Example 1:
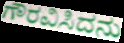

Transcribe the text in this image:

ಗೌರವಿಸಿದನು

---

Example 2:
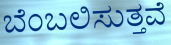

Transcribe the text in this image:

ಬೆಂಬಲಿಸುತ್ತವೆ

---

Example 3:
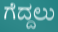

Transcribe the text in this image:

ಗೆದ್ದಲು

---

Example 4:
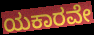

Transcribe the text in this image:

ಯಕಾರವೇ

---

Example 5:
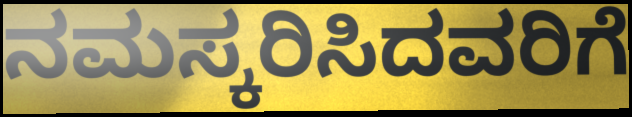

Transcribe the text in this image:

ನಮಸ್ಕರಿಸಿದವರಿಗೆ